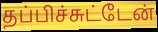
தப்பிச்சுட்டேன்